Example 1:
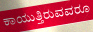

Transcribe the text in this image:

ಕಾಯುತ್ತಿರುವವರೂ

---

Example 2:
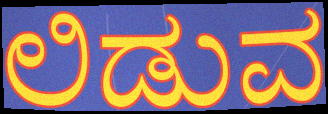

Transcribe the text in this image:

ಲಿಡುವ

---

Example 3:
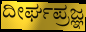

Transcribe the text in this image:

ದೀರ್ಘಪ್ರಜ್ಞ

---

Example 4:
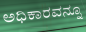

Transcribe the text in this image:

ಅಧಿಕಾರವನ್ನೂ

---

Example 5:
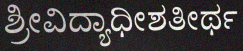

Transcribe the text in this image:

ಶ್ರೀವಿದ್ಯಾಧೀಶತೀರ್ಥ